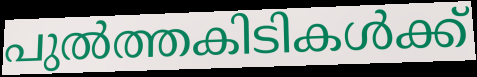
പുൽത്തകിടികൾക്ക്